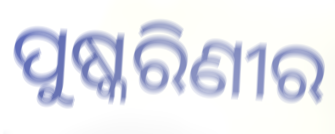
ପୁଷ୍କରିଣୀର